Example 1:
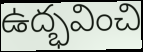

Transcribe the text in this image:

ఉద్భవించి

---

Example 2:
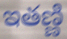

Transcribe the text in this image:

ఇతణ్ణి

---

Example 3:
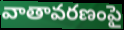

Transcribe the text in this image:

వాతావరణంపై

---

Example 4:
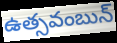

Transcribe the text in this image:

ఉత్సవంబున్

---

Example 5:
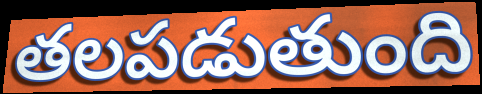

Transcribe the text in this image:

తలపడుతుంది